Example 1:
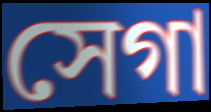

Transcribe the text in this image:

সেগা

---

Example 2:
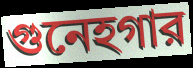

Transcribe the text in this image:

গুনেহগার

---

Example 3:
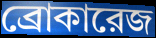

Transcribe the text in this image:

ব্রোকারেজ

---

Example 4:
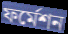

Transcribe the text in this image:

ফর্মেশন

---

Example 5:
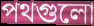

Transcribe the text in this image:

পথগুলো